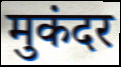
मुकंदर